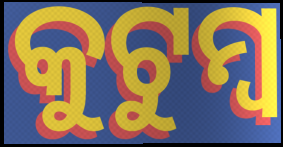
କୁଟୁମ୍ୱ